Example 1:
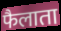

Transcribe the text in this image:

फैलाता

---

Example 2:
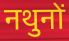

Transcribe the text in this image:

नथुनों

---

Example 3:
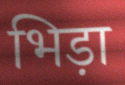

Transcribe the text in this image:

भिड़ा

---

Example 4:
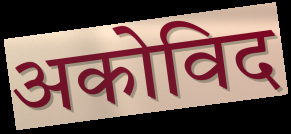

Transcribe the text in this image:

अकोविद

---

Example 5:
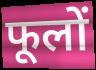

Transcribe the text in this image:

फूलों